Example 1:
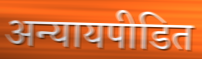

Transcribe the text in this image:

अन्यायपीडित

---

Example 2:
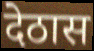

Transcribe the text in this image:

देठास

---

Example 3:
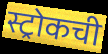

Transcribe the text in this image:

स्ट्रोकची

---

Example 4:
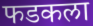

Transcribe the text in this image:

फडकला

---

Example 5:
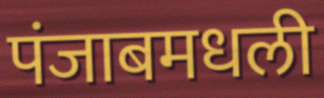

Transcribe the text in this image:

पंजाबमधली